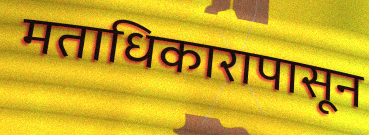
मताधिकारापासून